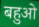
बहुओ